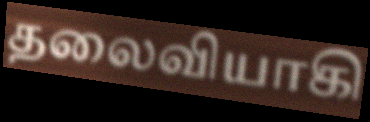
தலைவியாகி